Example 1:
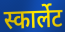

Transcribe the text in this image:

स्कार्लेट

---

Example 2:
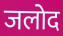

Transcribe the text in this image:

जलोद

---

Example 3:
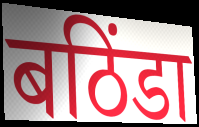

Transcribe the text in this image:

बठिंडा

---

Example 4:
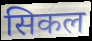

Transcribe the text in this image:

सिकल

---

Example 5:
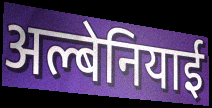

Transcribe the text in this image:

अल्बेनियाई